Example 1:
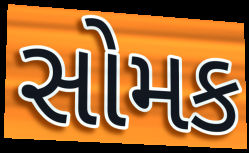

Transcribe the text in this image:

સોમક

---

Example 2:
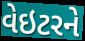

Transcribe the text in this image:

વેઇટરને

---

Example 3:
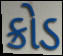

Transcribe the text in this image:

ક્રોડ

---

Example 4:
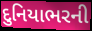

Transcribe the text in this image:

દુનિયાભરની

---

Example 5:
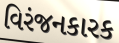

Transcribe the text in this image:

વિરંજનકારક